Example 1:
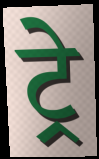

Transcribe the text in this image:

ट्रे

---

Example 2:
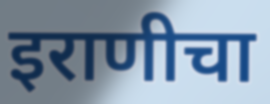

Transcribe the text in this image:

इराणीचा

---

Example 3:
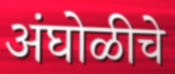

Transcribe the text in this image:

अंघोळीचे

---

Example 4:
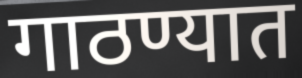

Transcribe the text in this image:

गाठण्यात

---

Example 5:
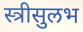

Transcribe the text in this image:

स्त्रीसुलभ